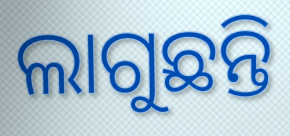
ଲାଗୁଛନ୍ତି